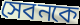
সেবনকে